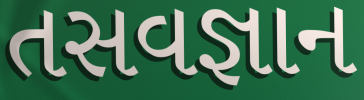
તસવજ્ઞાન